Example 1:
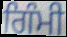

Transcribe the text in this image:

ਗਿੰਮੀ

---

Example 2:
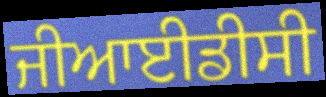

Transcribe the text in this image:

ਜੀਆਈਡੀਸੀ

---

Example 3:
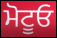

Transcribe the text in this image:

ਮੋਟੂਓ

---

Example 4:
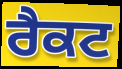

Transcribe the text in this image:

ਰੈਕਟ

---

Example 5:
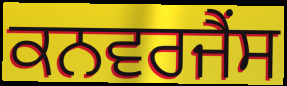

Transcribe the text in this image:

ਕਨਵਰਜੈਂਸ